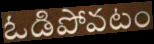
ఓడిపోవటం